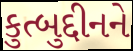
કુત્બુદ્દીનને